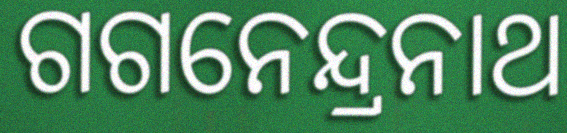
ଗଗନେନ୍ଦ୍ରନାଥ